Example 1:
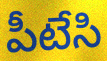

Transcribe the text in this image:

పీటేసి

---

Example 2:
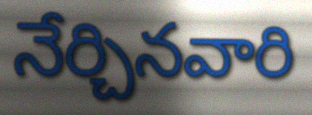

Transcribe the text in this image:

నేర్చినవారి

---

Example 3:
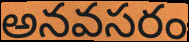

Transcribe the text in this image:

అనవసరం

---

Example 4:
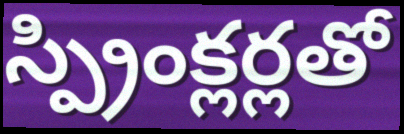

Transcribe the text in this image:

స్ప్రింక్లర్లతో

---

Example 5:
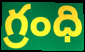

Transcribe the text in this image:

గ్రంధి